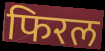
फिरल